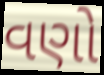
વણો